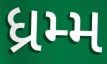
ધ્રમ્મ